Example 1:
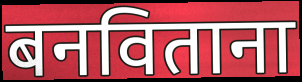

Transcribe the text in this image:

बनविताना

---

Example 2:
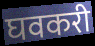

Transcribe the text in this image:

घवकरी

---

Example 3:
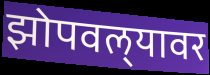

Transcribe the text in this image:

झोपवल्यावर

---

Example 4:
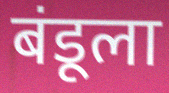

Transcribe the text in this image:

बंडूला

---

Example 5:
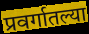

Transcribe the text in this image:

प्रवर्गातल्या